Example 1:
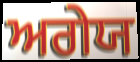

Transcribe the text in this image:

ਅਗੇਯ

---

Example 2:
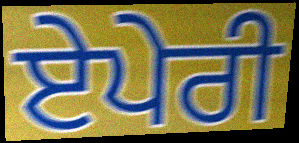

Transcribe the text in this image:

ਏਪੇਰੀ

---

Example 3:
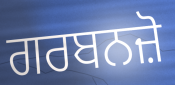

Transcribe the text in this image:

ਗਰਬਨਜ਼ੋ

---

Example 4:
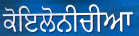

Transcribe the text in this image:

ਕੋਇਲੋਨੀਚੀਆ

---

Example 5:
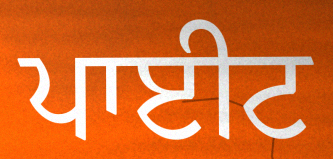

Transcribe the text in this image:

ਪਾਈਟ